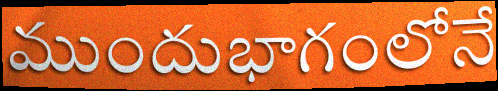
ముందుభాగంలోనే